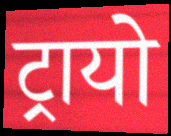
ट्रायो